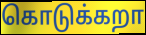
கொடுக்கறா